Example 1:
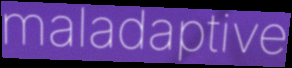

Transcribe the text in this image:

maladaptive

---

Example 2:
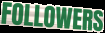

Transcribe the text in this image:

FOLLOWERS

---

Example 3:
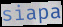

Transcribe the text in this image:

siapa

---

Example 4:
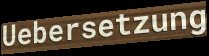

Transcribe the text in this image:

Uebersetzung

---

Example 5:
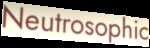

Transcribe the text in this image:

Neutrosophic